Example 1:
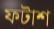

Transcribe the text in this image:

ফটাশ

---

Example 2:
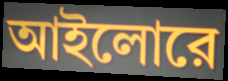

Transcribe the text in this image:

আইলোরে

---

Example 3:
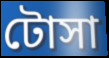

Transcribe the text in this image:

টোসা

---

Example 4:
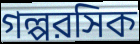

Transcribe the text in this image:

গল্পরসিক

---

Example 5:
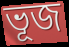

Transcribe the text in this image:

ভূজ